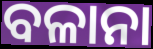
ବଳାନା